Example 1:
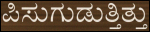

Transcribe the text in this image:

ಪಿಸುಗುಡುತ್ತಿತ್ತು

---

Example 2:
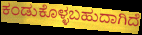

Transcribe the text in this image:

ಕಂಡುಕೊಳ್ಳಬಹುದಾಗಿದೆ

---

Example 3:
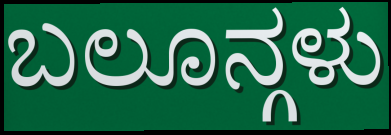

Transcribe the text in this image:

ಬಲೂನ್ಗಳು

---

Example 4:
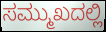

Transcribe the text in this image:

ಸಮ್ಮುಖದಲ್ಲಿ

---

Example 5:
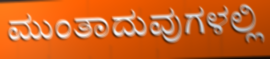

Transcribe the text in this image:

ಮುಂತಾದುವುಗಳಲ್ಲಿ